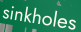
sinkholes